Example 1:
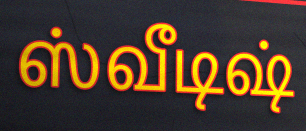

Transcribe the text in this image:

ஸ்வீடிஷ்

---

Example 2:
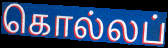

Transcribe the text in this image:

கொல்லப்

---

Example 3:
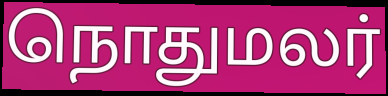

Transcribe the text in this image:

நொதுமலர்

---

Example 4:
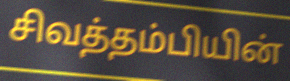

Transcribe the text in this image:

சிவத்தம்பியின்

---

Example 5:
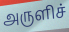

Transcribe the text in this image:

அருளிச்